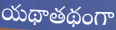
యథాతథంగా